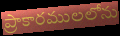
ప్రాకారములలోను